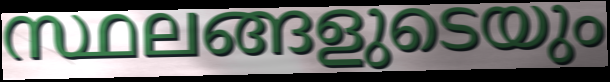
സ്ഥലങ്ങളുടെയും